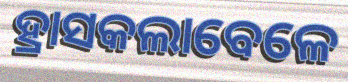
ହ୍ରାସକଲାବେଳେ